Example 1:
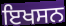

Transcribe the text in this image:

ਇਖਸਨ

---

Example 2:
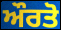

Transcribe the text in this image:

ਔਰਤੋ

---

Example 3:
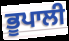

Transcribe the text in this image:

ਭੂਪਾਲੀ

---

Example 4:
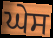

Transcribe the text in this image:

ਘੇਸ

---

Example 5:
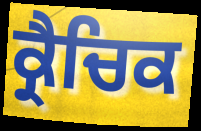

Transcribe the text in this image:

ਕ੍ਰੈਚਿਕ